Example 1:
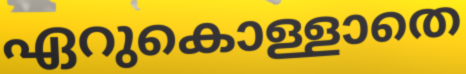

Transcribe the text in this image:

ഏറുകൊള്ളാതെ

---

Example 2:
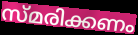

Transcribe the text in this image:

സ്മരിക്കണം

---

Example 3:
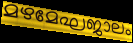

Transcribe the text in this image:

മഴമേഘജാലം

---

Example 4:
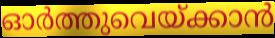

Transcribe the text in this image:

ഓർത്തുവെയ്ക്കാൻ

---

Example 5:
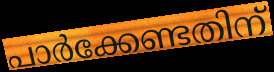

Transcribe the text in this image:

പാർക്കേണ്ടതിന്